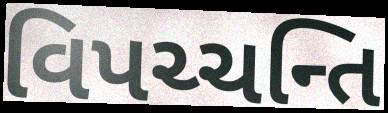
વિપચ્ચન્તિ